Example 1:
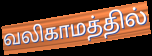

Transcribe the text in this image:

வலிகாமத்தில்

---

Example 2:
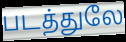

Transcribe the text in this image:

படத்துலே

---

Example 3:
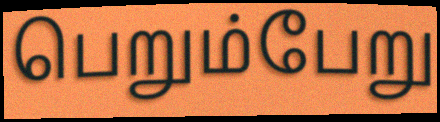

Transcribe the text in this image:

பெறும்பேறு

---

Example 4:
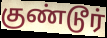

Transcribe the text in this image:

குண்டூர்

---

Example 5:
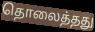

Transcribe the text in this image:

தொலைத்தது